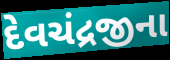
દેવચંદ્રજીના